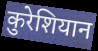
कुरेशियान